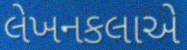
લેખનકલાએ